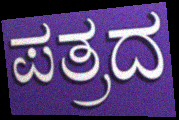
ಪತ್ರದ